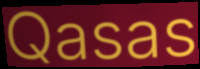
Qasas